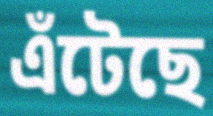
এঁটেছে